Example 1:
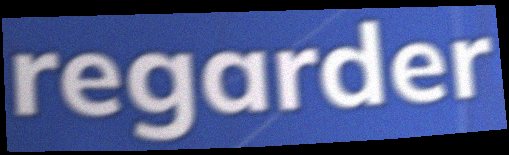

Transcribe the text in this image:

regarder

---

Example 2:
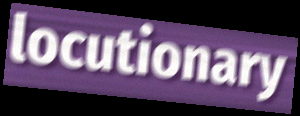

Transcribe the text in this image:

locutionary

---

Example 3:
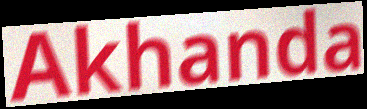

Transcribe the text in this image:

Akhanda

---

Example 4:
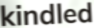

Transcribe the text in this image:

kindled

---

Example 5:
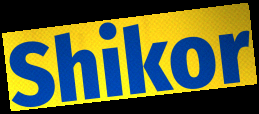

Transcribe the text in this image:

Shikor